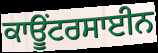
ਕਾਊਂਟਰਸਾਈਨ